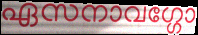
ഏസനാവഗ്ഗോ